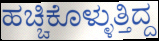
ಹಚ್ಚಿಕೊಳ್ಳುತ್ತಿದ್ದ